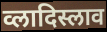
व्लादिस्लाव